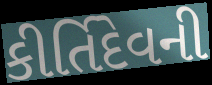
કીર્તિદેવની